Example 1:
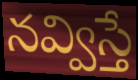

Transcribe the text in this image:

నవ్విస్తే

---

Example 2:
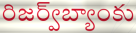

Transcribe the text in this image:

రిజర్వ్‌బ్యాంకు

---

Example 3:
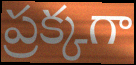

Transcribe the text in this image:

ప్రక్కగా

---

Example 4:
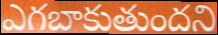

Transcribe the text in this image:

ఎగబాకుతుందని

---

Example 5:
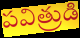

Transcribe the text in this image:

పవిత్రుడి